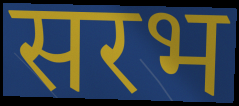
सरभ